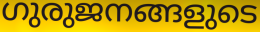
ഗുരുജനങ്ങളുടെ